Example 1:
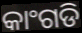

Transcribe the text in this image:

କାଂଗଡି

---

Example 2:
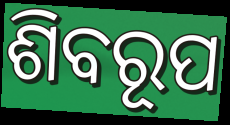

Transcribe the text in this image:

ଶିବରୂପ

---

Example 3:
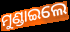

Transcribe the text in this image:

ମୁଣ୍ଡାଇଲେ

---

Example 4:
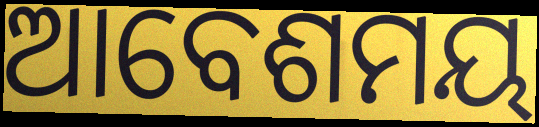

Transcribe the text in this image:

ଆବେଶମୟ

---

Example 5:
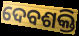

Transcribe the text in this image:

ଦେବଶକ୍ତି